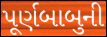
પૂર્ણબાબુની